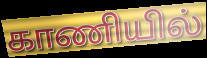
காணியில்